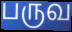
பருவ